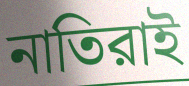
নাতিরাই